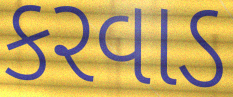
કરવાડ